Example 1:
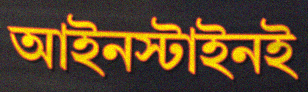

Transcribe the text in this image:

আইনস্টাইনই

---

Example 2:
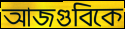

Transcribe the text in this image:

আজগুবিকে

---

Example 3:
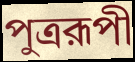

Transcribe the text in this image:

পুত্ররূপী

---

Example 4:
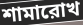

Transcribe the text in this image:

শামারোখ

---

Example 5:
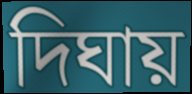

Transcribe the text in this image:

দিঘায়